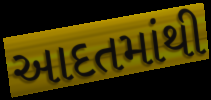
આદતમાંથી